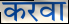
करवा